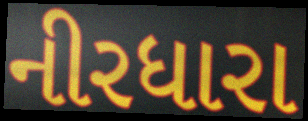
નીરધારા